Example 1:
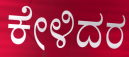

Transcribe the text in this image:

ಕೇಳಿದರ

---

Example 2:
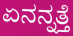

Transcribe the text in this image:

ಏನನ್ನತ್ತೆ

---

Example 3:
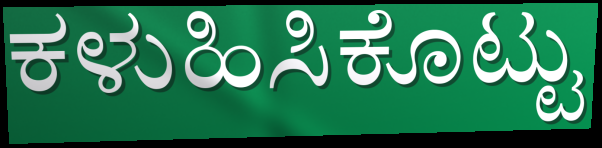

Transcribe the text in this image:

ಕಳುಹಿಸಿಕೊಟ್ಟು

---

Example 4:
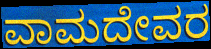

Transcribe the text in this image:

ವಾಮದೇವರ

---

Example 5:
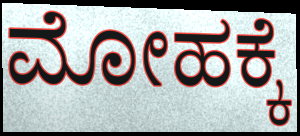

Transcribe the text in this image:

ಮೋಹಕ್ಕೆ